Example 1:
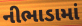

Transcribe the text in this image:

નીભાડામાં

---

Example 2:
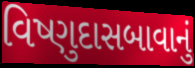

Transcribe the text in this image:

વિષ્ણુદાસબાવાનું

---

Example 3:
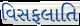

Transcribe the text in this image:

વિસફલાતિ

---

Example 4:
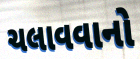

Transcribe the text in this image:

ચલાવવાનો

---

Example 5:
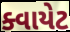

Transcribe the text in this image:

ક્વાયેટ